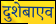
दुशेबाएव